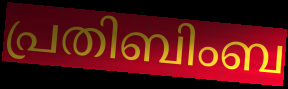
പ്രതിബിംബ